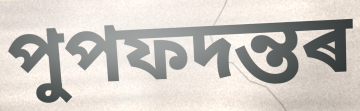
পুপফদন্তৰ